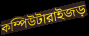
কম্পিউটারাইজড়